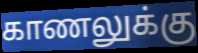
காணலுக்கு